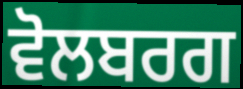
ਵੋਲਬਰਗ